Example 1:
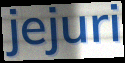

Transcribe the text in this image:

jejuri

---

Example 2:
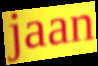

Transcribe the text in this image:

jaan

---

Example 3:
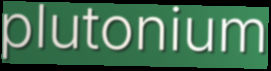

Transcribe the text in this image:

plutonium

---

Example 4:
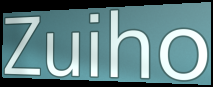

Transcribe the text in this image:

Zuiho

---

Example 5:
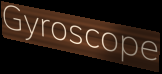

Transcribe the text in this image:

Gyroscope